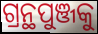
ଗ୍ରନ୍ଥପୁଞ୍ଜକୁ